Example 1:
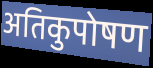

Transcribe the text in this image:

अतिकुपोषण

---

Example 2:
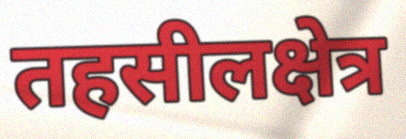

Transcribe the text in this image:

तहसीलक्षेत्र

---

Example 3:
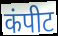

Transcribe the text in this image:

कंपीट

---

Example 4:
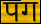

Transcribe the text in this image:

पग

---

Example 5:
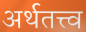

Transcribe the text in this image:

अर्थतत्त्व